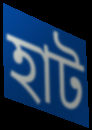
হাট